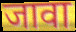
जावा